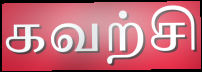
கவற்சி